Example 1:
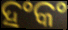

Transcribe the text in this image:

ହଂକଂ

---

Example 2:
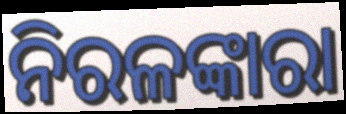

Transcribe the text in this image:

ନିରଳଙ୍କାରା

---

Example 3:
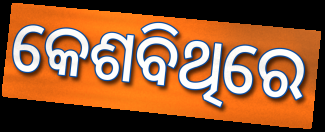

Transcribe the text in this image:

କେଶବିଥିରେ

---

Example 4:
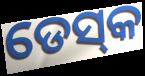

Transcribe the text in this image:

ଡେସ୍‌କ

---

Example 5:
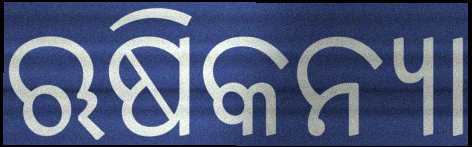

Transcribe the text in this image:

ଋଷିକନ୍ୟା